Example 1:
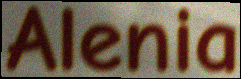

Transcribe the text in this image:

Alenia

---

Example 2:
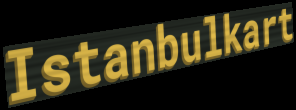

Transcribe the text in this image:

Istanbulkart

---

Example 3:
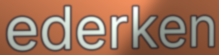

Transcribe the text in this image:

ederken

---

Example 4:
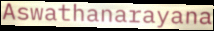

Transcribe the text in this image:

Aswathanarayana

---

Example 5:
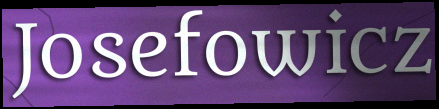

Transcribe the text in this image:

Josefowicz